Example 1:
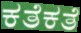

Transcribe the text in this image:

ಕತೆಕತೆ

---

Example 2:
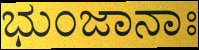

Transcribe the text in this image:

ಭುಂಜಾನಾಃ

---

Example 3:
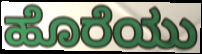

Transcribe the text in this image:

ಹೊರೆಯು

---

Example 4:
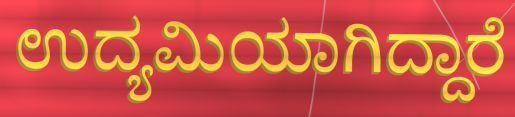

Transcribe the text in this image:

ಉದ್ಯಮಿಯಾಗಿದ್ದಾರೆ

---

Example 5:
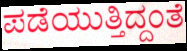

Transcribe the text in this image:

ಪಡೆಯುತ್ತಿದ್ದಂತೆ